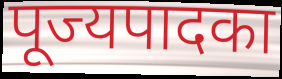
पूज्यपादका